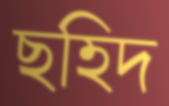
ছহিদ